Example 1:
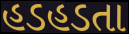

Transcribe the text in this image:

હડહડતા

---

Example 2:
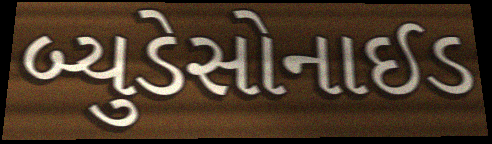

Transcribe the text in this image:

બ્યુડેસોનાઈડ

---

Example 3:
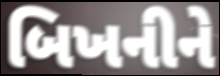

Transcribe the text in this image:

બિખનીને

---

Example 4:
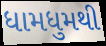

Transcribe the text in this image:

ધામધુમથી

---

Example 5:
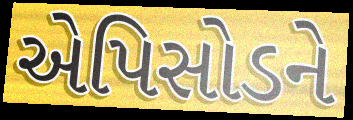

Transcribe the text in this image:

એપિસોડને